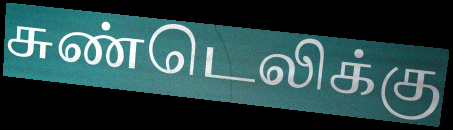
சுண்டெலிக்கு